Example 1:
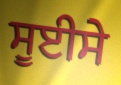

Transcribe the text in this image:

ਸੂਈਸੇ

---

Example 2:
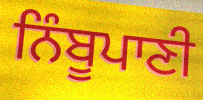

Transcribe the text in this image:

ਨਿੰਬੂਪਾਣੀ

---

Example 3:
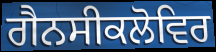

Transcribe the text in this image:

ਗੈਨਸੀਕਲੋਵਿਰ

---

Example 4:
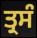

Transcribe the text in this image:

ਤ੍ਰਸੰ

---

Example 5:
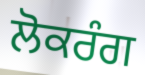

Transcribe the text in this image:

ਲੋਕਰੰਗ